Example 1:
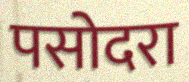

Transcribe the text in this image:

पसोदरा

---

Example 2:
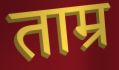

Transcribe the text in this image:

ताम्र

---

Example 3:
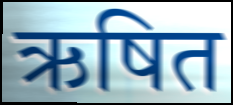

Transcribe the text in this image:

ऋषित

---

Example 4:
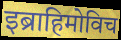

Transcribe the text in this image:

इब्राहिमोविच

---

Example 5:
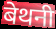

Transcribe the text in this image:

बेथनी